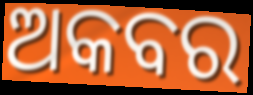
ଅକବର